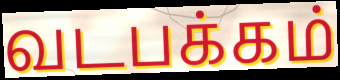
வடபக்கம்